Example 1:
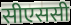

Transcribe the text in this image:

सीएससी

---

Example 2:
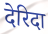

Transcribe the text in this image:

देरिदा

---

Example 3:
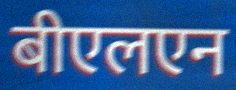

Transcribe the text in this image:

बीएलएन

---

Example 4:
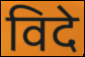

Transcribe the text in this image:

विदे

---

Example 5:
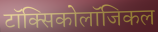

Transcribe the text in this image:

टॉक्सिकोलॉजिकल